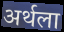
अर्थला